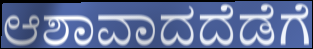
ಆಶಾವಾದದೆಡೆಗೆ